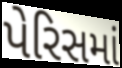
પેરિસમાં